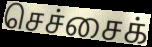
செச்சைக்